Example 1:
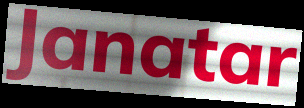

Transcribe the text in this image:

Janatar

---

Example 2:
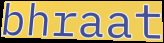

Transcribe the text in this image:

bhraat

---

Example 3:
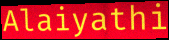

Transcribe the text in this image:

Alaiyathi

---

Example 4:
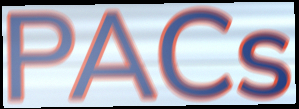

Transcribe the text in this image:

PACs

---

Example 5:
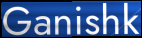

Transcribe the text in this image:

Ganishk